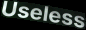
Useless